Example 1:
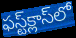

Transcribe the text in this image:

ఫస్ట్‌క్లాస్‌లో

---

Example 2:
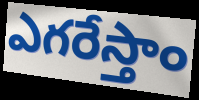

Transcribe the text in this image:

ఎగరేస్తాం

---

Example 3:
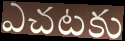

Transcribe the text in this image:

ఎచటకు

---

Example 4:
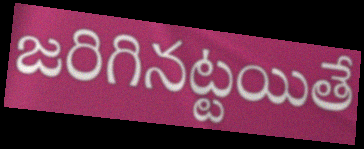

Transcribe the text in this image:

జరిగినట్టయితే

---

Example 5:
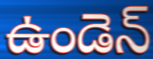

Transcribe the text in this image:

ఉండెన్